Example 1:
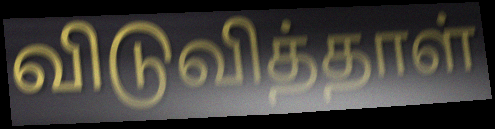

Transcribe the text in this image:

விடுவித்தாள்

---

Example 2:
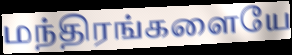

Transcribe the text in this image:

மந்திரங்களையே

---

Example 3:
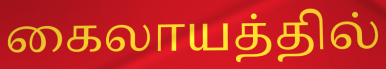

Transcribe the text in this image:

கைலாயத்தில்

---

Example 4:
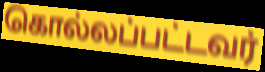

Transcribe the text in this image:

கொல்லப்பட்டவர்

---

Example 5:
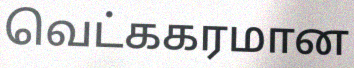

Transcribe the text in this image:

வெட்ககரமான